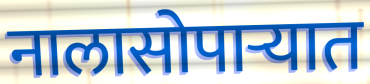
नालासोपाऱ्यात